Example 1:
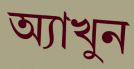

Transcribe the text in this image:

অ্যাখুন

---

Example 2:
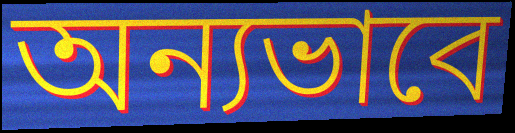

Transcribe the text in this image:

অন্যভাবে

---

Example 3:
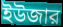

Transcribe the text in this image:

ইউজার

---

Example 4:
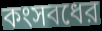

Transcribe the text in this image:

কংসবধের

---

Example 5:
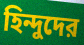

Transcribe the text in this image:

হিন্দুদের